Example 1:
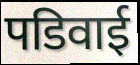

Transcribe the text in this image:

पडिवाई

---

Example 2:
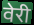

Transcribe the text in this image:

वेरी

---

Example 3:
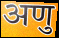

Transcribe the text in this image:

अणु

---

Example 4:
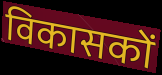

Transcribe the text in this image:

विकासकों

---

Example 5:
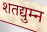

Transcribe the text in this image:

शतद्युम्न